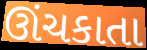
ઊંચકાતા